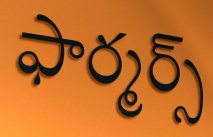
ఫార్మర్స్